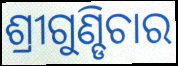
ଶ୍ରୀଗୁଣ୍ଡିଚାର